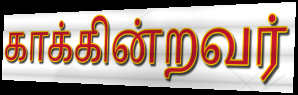
காக்கின்றவர்